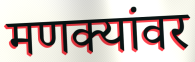
मणक्यांवर